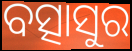
ବତ୍ସାସୁର